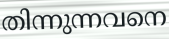
തിന്നുന്നവനെ